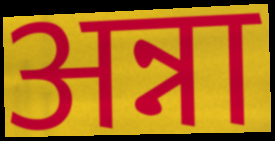
अन्ना